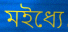
মইধ্যে